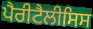
ਪੈਰੀਟੈਲੀਸਿਸ